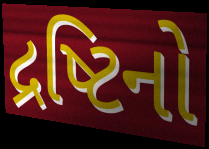
દ્રષ્ટિનો